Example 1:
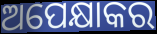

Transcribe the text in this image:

ଅପେକ୍ଷାକର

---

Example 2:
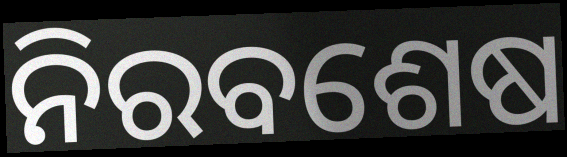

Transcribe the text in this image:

ନିରବଶେଷ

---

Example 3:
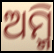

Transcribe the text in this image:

ଅମ୍ମି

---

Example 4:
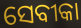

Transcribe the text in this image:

ସେବୀକା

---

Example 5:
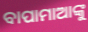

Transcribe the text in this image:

ବାପାମାଆଙ୍କୁ